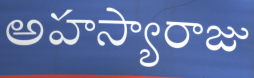
అహస్యారాజు